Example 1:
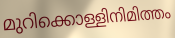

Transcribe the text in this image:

മുറിക്കൊള്ളിനിമിത്തം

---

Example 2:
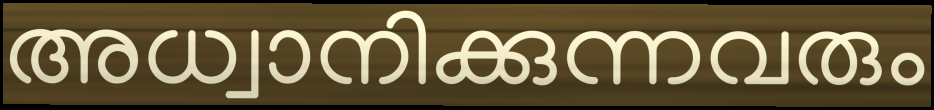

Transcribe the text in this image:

അധ്വാനിക്കുന്നവരും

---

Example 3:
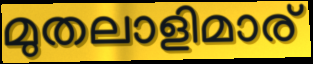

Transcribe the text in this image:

മുതലാളിമാര്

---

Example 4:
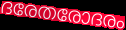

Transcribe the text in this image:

ദരേതരോദരം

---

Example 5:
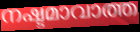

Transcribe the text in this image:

നഷ്ടമാവാത്ത